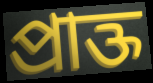
প্রাক্ত